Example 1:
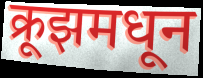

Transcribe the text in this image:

क्रूझमधून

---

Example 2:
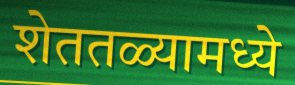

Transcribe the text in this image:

शेततळ्यामध्ये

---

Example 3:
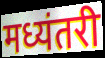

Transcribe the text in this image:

मध्यंतरी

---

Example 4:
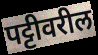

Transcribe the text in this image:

पट्टीवरील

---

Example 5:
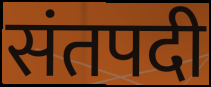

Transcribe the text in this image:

संतपदी